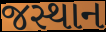
જસ્થાન